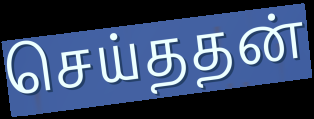
செய்ததன்